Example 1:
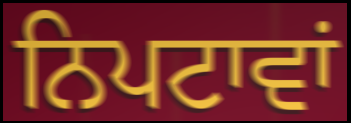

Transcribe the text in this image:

ਨਿਪਟਾਵਾਂ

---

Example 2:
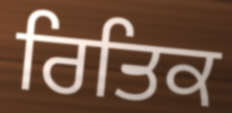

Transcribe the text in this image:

ਰਿਤਿਕ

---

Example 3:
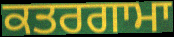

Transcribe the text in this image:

ਕਤਰਗਾਮਾ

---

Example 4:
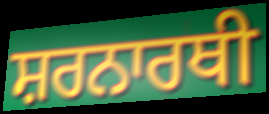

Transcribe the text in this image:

ਸ਼ਰਨਾਰਥੀ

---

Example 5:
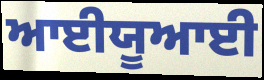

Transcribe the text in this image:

ਆਈਯੂਆਈ